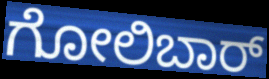
ಗೋಲಿಬಾರ್